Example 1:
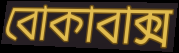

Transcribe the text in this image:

বোকাবাক্স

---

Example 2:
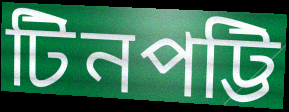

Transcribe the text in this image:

টিনপট্টি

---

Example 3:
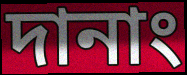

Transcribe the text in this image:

দানাং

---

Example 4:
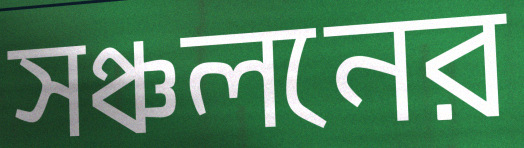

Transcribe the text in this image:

সঞ্চলনের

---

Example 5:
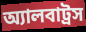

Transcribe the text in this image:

অ্যালবাট্রস